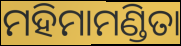
ମହିମାମଣ୍ଡିତା